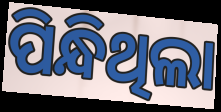
ପିନ୍ଧିଥିଲା